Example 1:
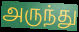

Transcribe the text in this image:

அருந்து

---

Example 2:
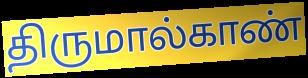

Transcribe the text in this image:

திருமால்காண்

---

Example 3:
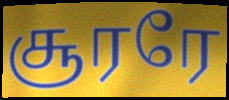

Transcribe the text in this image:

சூரரே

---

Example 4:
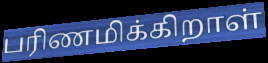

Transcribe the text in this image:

பரிணமிக்கிறாள்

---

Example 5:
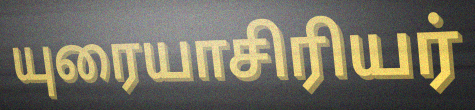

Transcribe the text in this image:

யுரையாசிரியர்